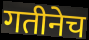
गतीनेच